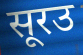
सूरउ